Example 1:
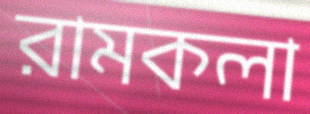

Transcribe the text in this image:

রামকলা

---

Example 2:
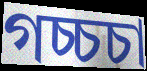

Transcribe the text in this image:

গচ্চচা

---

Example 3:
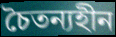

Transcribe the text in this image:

চৈতন্যহীন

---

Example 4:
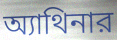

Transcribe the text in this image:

অ্যাথিনার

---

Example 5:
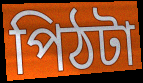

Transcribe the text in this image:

পিঠটা